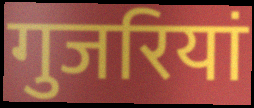
गुजरियां